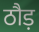
ठौड़